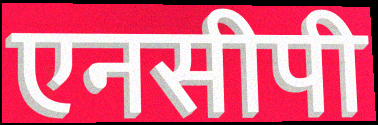
एनसीपी